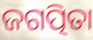
ଜଗତ୍ପିତା